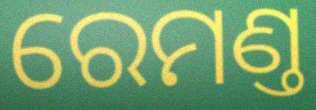
ରେମଣ୍ତ